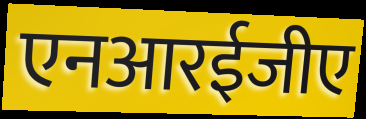
एनआरईजीए